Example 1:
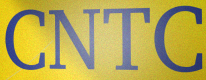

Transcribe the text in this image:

CNTC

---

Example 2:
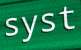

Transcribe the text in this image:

syst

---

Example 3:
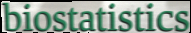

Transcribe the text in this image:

biostatistics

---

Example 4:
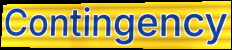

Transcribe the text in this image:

Contingency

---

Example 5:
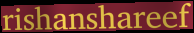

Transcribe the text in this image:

rishanshareef